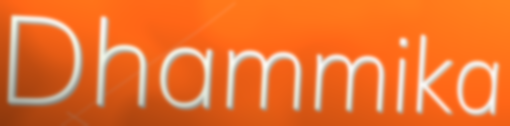
Dhammika